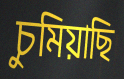
চুমিয়াছি